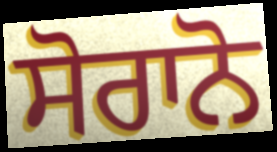
ਸੋਰਾਨੋ